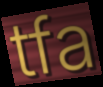
tfa